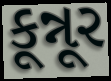
કૂન્નૂર